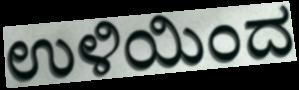
ಉಳಿಯಿಂದ